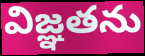
విజ్ఞతను